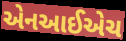
એનઆઈએચ